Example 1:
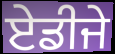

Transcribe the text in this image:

ਏਡੀਜੇ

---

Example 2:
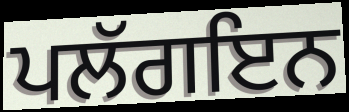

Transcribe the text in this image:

ਪਲੱਗਇਨ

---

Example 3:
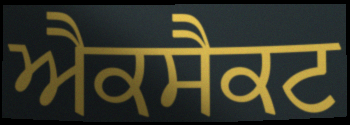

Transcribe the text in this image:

ਐਕਸੈਕਟ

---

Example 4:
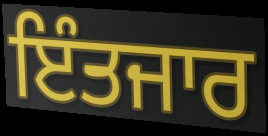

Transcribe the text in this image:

ਇੰਤਜਾਰ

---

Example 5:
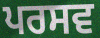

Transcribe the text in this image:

ਪਰਸਵ